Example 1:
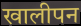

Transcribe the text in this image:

खालीपन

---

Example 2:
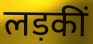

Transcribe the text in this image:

लड़कीं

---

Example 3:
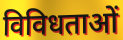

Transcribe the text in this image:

विविधताओं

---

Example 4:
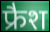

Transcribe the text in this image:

फ्रैश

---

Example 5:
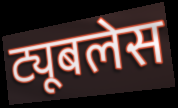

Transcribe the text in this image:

ट्यूबलेस